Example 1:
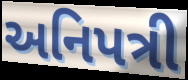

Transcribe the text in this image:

અનિપત્રી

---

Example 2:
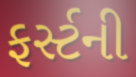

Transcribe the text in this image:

ફર્સ્ટની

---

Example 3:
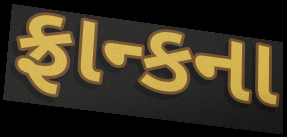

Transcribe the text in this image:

ફ્રાન્કના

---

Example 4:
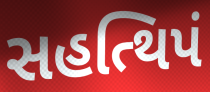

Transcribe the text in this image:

સહત્થિપં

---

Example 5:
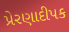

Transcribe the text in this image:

પ્રેરણાદીપક